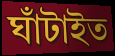
ঘাঁটাইত